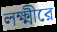
লক্ষ্মীরে